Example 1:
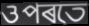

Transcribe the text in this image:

ওপৰতে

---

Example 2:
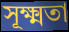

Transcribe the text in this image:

সূক্ষ্মতা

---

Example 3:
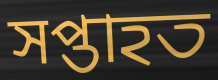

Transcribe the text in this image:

সপ্তাহত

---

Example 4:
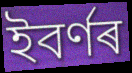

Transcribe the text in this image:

ইবৰ্ণৰ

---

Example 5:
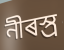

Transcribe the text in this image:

নীৰস্ত্ৰ